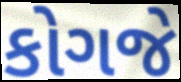
કોગજે